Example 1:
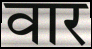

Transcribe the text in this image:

वार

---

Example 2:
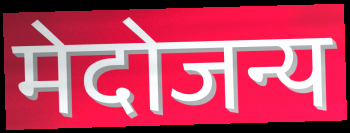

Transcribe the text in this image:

मेदोजन्य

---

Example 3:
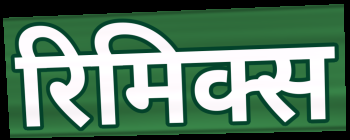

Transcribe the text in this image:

रिमिक्स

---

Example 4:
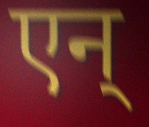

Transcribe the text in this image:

एन्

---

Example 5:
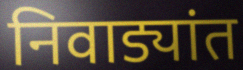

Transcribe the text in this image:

निवाड्यांत